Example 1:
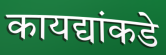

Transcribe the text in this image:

कायद्यांकडे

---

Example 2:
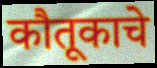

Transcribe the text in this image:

कौतूकाचे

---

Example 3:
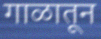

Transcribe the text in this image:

गाळातून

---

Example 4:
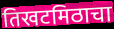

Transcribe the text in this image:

तिखटमिठाचा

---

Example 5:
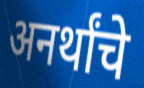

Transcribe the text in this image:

अनर्थांचे